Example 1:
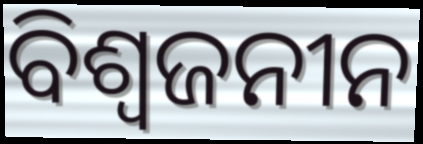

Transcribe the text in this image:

ବିଶ୍ବଜନୀନ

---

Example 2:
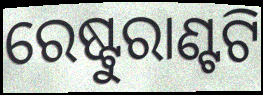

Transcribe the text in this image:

ରେଷ୍ଟୁରାଣ୍ଟଟି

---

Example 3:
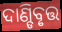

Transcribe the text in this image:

ଦାଣ୍ଡିବୃତ୍ତ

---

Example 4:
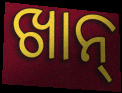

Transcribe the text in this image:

ଖାନ୍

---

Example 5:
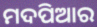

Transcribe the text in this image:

ମଦପିଆର